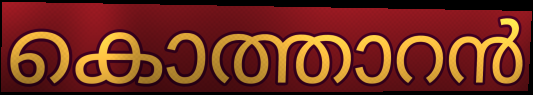
കൊത്താറൻ